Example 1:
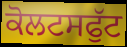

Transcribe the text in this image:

ਕੋਲਟਸਫੁੱਟ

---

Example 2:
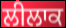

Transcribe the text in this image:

ਲੀਲਾਕ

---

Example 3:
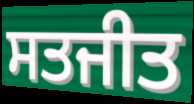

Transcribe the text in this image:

ਸਤਜੀਤ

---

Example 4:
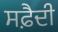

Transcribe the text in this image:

ਸਫ਼ੈਦੀ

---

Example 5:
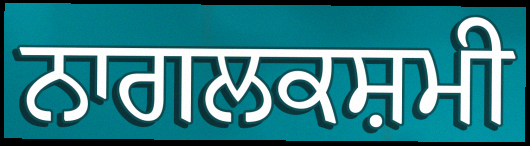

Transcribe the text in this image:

ਨਾਗਲਕਸ਼ਮੀ